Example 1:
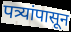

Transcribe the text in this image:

पत्र्यांपासून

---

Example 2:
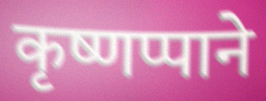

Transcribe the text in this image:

कृष्णप्पाने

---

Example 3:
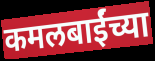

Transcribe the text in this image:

कमलबाईंच्या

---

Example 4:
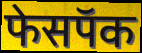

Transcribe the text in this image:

फेसपॅक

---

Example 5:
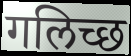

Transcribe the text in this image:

गलिच्छ